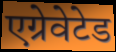
एग्रेवेटेड